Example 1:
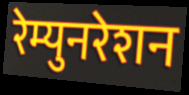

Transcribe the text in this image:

रेम्युनरेशन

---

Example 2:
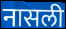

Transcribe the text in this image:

नासली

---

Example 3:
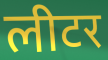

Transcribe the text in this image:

लीटर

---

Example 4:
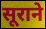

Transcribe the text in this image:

सूराने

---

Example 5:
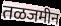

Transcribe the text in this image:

तळजमीन